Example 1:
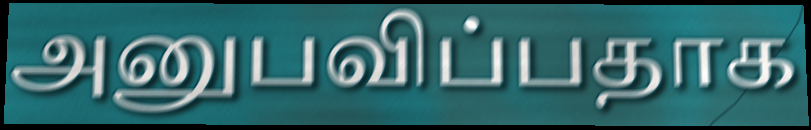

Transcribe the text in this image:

அனுபவிப்பதாக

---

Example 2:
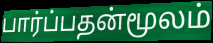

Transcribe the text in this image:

பார்ப்பதன்மூலம்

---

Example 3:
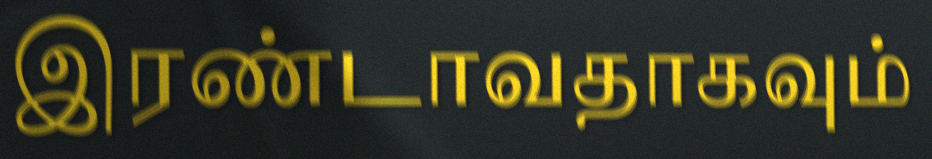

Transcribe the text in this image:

இரண்டாவதாகவும்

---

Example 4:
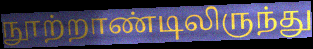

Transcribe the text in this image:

நூற்றாண்டிலிருந்து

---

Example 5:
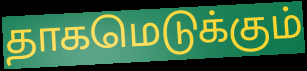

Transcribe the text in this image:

தாகமெடுக்கும்